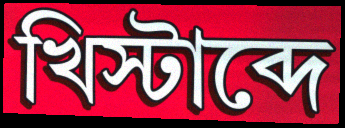
খিস্টাব্দে